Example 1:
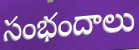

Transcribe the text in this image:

సంభందాలు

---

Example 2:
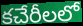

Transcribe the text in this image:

కచేరీలలో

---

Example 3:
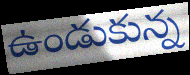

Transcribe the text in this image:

ఉండుకున్న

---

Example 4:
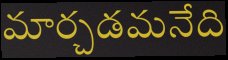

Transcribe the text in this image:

మార్చడమనేది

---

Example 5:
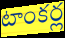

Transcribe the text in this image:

టాంకర్ల